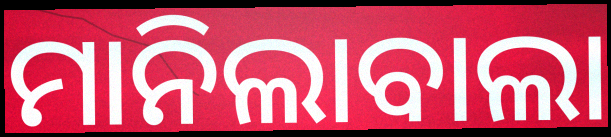
ମାନିଲାବାଲା